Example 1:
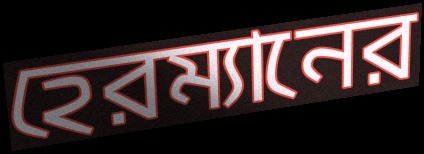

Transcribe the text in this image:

হেরম্যানের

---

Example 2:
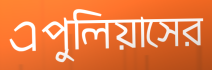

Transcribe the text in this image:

এপুলিয়াসের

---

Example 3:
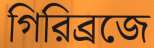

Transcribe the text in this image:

গিরিব্রজে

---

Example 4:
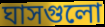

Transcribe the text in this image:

ঘাসগুলো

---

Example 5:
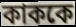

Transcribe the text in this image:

কাককে